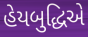
હેયબુદ્ધિએ